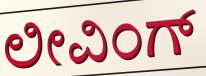
ಲೀವಿಂಗ್